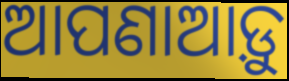
ଆପଣାଆଡ଼ୁ